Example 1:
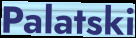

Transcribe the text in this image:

Palatski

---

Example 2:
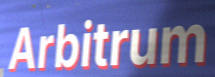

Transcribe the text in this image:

Arbitrum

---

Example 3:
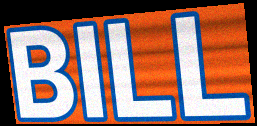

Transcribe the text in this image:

BILL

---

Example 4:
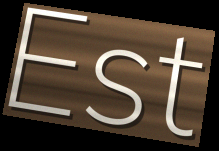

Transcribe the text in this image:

Est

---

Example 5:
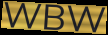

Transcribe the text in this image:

WBW